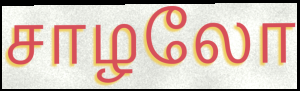
சாழலோ